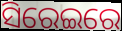
ସିରେଇରେ